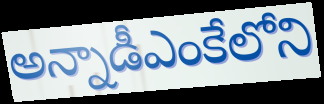
అన్నాడీఎంకేలోని